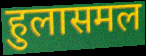
हुलासमल